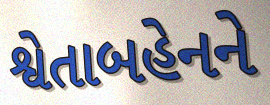
શ્વેતાબહેનને